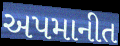
અપમાનીત